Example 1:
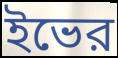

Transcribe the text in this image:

ইভের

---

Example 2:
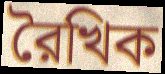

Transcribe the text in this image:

রৈখিক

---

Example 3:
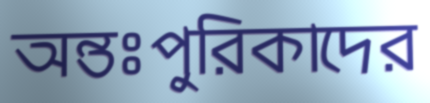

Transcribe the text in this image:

অন্তঃপুরিকাদের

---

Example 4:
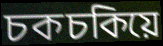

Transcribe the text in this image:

চকচকিয়ে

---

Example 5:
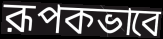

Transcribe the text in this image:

রূপকভাবে